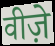
वीज़े